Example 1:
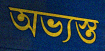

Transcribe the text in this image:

অভ্যস্ত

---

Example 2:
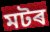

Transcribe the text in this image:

মটৰ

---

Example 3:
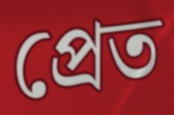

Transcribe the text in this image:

প্ৰেত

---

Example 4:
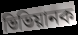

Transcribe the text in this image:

ভিভিয়ানক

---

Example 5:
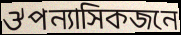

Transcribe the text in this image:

ঔপন্যাসিকজনে